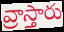
వ్రాస్తారు